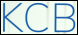
KCB